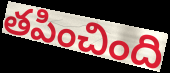
తపించింది